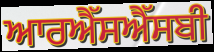
ਆਰਐੱਸਐੱਸਬੀ